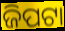
ଜିପଟା